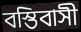
বস্তিবাসী